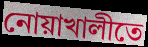
নোয়াখালীতে